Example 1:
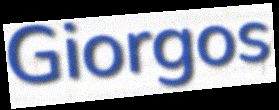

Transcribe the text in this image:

Giorgos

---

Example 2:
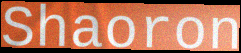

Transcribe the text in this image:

Shaoron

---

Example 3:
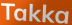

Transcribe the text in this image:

Takka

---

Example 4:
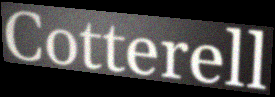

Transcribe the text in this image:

Cotterell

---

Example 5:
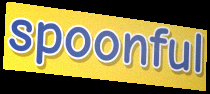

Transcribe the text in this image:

spoonful